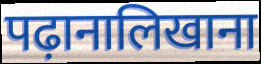
पढ़ानालिखाना